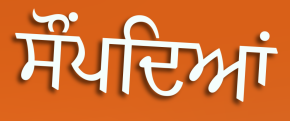
ਸੌਂਪਦਿਆਂ